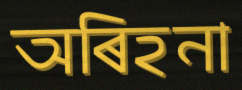
অৰিহনা